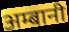
अम्‍बानी